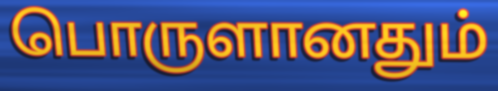
பொருளானதும்